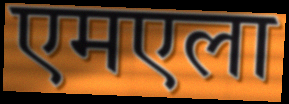
एमएला